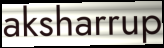
aksharrup